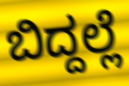
ಬಿದ್ದಲ್ಲೆ